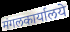
मंगलकार्यालये